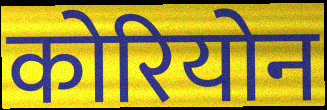
कोरियोन